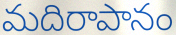
మదిరాపానం